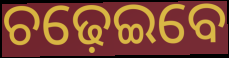
ଚଢ଼େଇବେ